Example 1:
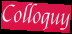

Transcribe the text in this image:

Colloquy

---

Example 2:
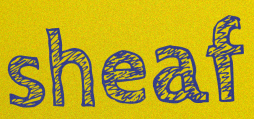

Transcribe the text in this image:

sheaf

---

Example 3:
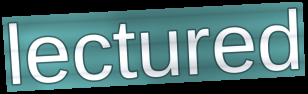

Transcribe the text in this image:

lectured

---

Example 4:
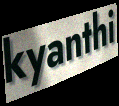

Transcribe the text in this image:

kyanthi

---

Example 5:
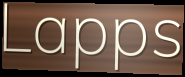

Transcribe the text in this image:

Lapps